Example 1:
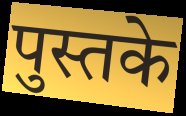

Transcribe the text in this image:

पुस्‍तके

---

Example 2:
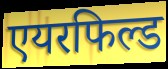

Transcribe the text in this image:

एयरफिल्ड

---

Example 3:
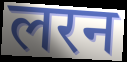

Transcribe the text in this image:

लरन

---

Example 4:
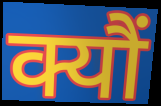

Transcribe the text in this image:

क्यौं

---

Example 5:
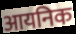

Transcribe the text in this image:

आयनिक